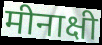
मीनाक्षी